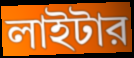
লাইটার